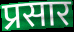
प्रसार